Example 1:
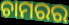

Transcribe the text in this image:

ଚାମରର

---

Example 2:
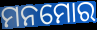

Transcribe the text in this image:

ମନମୋର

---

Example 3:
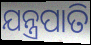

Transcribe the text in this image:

ଯନ୍ତ୍ରପାତି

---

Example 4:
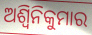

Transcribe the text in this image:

ଅଶ୍ୱିନିକୁମାର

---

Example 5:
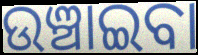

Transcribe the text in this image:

ଉଞ୍ଚାଇବା